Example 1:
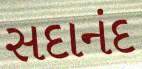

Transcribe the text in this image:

સદાનંદ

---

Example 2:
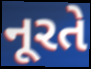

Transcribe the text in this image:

નૂરતે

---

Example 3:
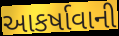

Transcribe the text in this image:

આકર્ષાવાની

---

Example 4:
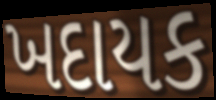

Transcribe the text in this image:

ખદાયક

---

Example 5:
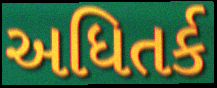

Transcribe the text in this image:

અધિતર્ક